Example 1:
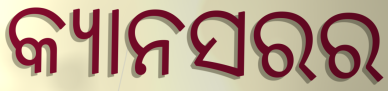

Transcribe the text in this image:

କ୍ୟାନସରର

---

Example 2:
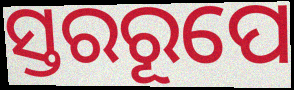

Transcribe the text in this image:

ସ୍ତରରୂପେ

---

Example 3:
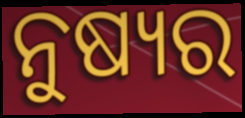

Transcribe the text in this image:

ନୁଷ୍ୟର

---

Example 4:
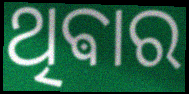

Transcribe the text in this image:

ଥିଵାର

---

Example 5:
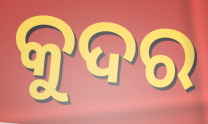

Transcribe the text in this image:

କୁଦର